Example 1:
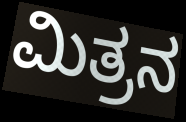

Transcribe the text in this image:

ಮಿತ್ರನ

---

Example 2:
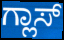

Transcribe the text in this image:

ಗ್ಲಾಸ್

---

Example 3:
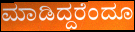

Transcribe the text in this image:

ಮಾಡಿದ್ದರೆಂದೂ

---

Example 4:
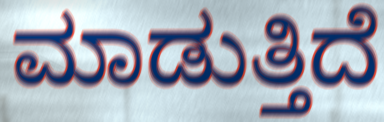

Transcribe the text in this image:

ಮಾಡುತ್ತಿದೆ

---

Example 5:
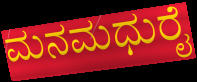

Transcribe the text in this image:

ಮನಮಧುರೈ